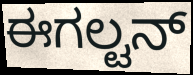
ಈಗಲ್ಟನ್